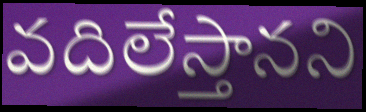
వదిలేస్తానని